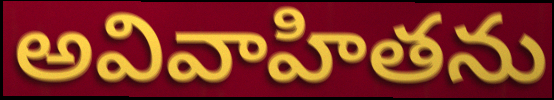
అవివాహితను